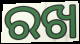
ରଖ